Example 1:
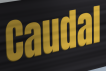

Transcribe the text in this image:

Caudal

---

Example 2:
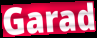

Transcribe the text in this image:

Garad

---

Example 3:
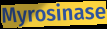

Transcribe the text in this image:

Myrosinase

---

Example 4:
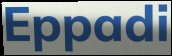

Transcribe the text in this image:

Eppadi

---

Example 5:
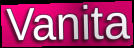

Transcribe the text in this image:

Vanita